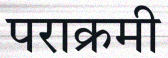
पराक्रमी